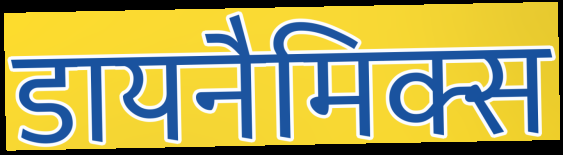
डायनैमिक्स